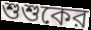
শুশুকের